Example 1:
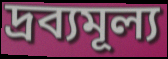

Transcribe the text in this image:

দ্রব্যমূল্য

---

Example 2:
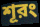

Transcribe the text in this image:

শূরং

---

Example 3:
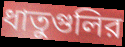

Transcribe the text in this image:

ধাতুগুলির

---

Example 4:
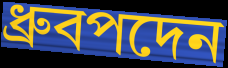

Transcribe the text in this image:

ধ্রুবপদেন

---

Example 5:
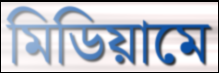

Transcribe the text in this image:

মিডিয়ামে